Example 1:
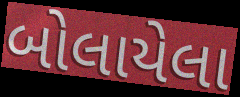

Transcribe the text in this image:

બોલાયેલા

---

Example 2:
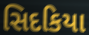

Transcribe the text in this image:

સિદકિયા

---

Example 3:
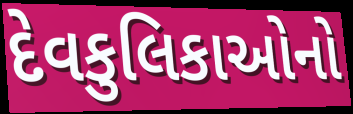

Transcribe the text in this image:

દેવકુલિકાઓનો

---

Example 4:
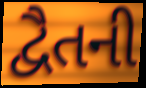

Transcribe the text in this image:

દ્વૈતની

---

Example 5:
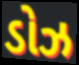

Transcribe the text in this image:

ડોઝ